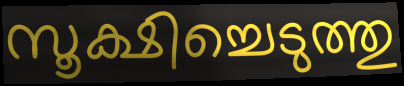
സൂക്ഷിച്ചെടുത്തു